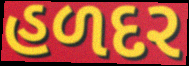
હળદર